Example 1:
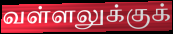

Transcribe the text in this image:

வள்ளலுக்குக்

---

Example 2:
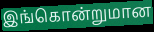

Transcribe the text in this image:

இங்கொன்றுமான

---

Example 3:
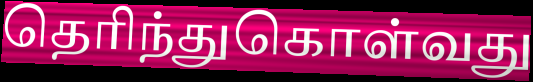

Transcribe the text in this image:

தெரிந்துகொள்வது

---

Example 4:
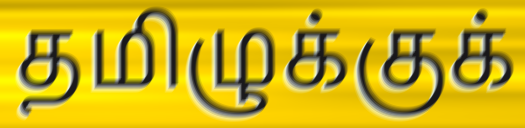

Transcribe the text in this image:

தமிழுக்குக்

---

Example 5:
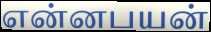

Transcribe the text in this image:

என்னபயன்